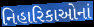
નિહારિકાઓનાં